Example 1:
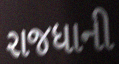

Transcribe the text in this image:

રાજધાની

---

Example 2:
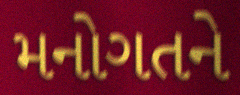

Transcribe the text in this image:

મનોગતને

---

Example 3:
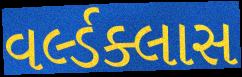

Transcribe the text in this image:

વર્લ્ડક્લાસ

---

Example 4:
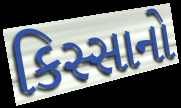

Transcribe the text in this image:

કિસ્સાનો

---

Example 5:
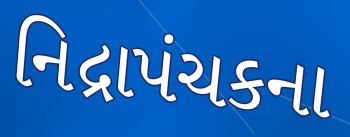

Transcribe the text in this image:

નિદ્રાપંચકના